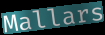
Mallars